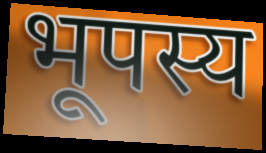
भूपस्य